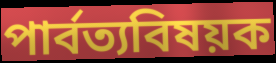
পার্বত্যবিষয়ক